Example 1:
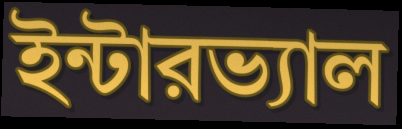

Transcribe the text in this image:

ইন্টারভ্যাল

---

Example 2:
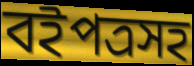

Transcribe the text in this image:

বইপত্রসহ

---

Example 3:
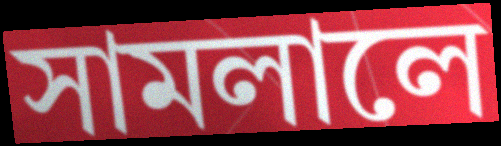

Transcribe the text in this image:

সামলালে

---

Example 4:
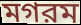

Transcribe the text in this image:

মগরম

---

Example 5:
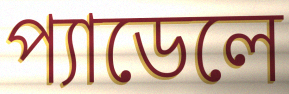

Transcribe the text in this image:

প্যাডেলে